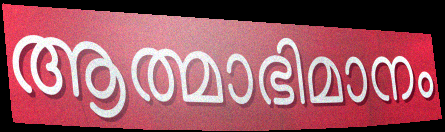
ആത്മാഭിമാനം